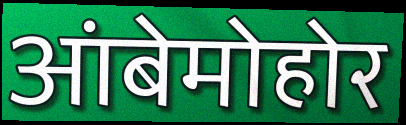
आंबेमोहोर